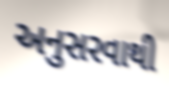
અનુસરવાથી